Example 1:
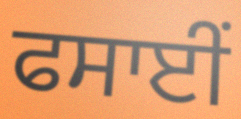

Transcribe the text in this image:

ਫਸਾਈਂ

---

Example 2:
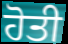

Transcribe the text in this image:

ਹੋਤੀ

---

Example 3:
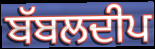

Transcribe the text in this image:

ਬੱਬਲਦੀਪ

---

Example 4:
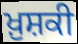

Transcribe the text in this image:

ਖ਼ੁਸ਼ਕੀ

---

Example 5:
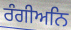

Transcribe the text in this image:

ਰੰਗੀਅਨਿ